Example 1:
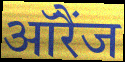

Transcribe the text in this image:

ऑरैंज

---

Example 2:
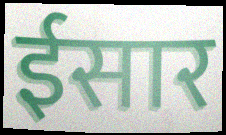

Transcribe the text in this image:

ईसार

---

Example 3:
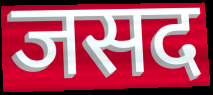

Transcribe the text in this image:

जसद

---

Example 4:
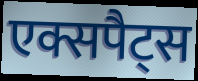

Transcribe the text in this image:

एक्सपैट्स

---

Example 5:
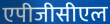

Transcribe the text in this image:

एपीजीसीएल